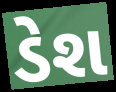
ડેશ